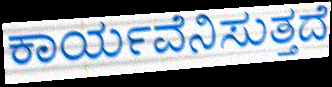
ಕಾರ್ಯವೆನಿಸುತ್ತದೆ